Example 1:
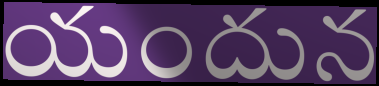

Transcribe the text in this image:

యందున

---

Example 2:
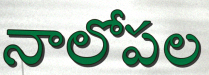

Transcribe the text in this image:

నాలోపల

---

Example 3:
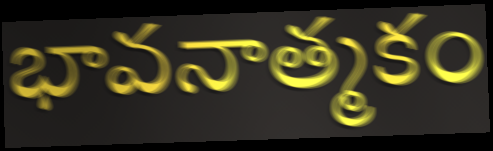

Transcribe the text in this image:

భావనాత్మకం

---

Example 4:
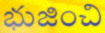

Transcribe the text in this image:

భుజించి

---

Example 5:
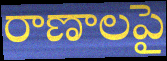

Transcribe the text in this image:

రాణాలపై